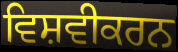
ਵਿਸ਼ਵੀਕਰਨ